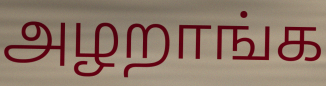
அழறாங்க